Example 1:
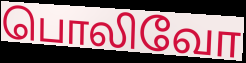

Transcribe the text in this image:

பொலிவோ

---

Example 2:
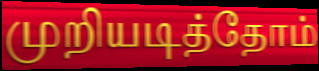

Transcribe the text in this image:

முறியடித்தோம்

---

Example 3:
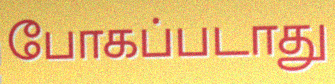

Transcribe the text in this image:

போகப்படாது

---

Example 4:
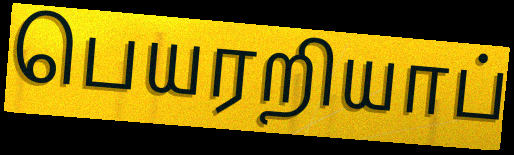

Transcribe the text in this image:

பெயரறியாப்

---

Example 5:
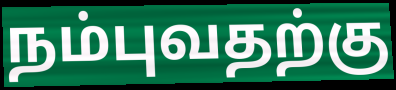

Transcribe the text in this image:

நம்புவதற்கு